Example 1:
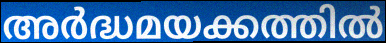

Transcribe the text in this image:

അർദ്ധമയക്കത്തിൽ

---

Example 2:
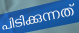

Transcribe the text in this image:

പിടിക്കുന്നത്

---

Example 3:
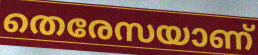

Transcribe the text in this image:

തെരേസയാണ്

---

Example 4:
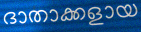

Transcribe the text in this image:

ദാതാക്കളായ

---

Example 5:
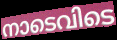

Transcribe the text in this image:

നാടെവിടെ